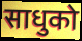
साधुको